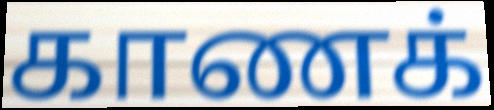
காணக்